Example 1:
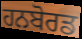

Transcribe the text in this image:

ਹਨਬੋਰਡ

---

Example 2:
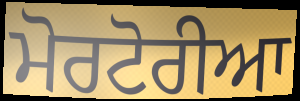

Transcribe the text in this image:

ਮੋਰਟੋਰੀਆ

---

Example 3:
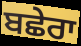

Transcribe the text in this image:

ਬਛੇਰਾ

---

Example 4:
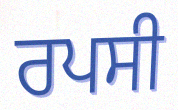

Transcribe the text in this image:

ਰਪਸੀ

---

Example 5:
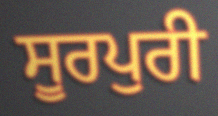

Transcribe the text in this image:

ਸੂਰਪੁਰੀ